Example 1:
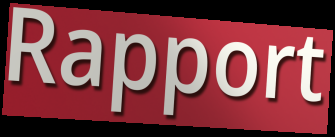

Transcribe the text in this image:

Rapport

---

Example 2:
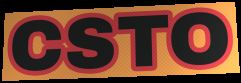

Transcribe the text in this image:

CSTO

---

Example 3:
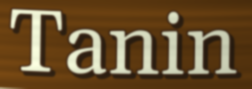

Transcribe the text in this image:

Tanin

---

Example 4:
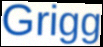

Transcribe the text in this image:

Grigg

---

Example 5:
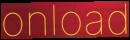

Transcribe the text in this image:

onload